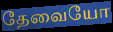
தேவையோ